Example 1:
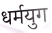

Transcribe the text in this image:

धर्मयुग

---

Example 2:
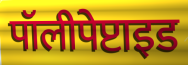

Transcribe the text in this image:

पॉलीपेप्टाइड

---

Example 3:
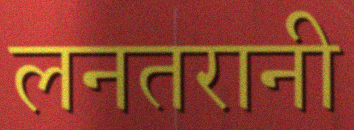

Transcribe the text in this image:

लनतरानी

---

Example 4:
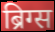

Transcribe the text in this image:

ब्रिग्स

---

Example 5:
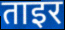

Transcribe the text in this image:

ताइर